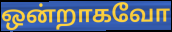
ஒன்றாகவோ